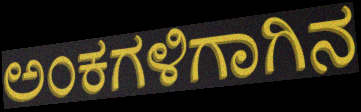
ಅಂಕಗಳಿಗಾಗಿನ